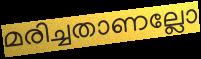
മരിച്ചതാണല്ലോ